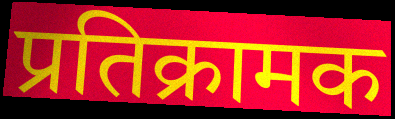
प्रतिक्रामक